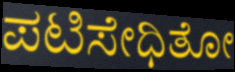
ಪಟಿಸೇಧಿತೋ